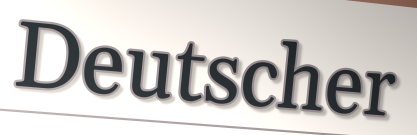
Deutscher